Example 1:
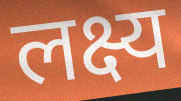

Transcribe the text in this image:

लक्ष्य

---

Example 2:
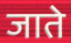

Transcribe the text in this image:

जाते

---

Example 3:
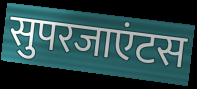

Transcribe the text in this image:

सुपरजाएंटस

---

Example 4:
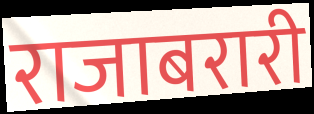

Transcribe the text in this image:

राजाबरारी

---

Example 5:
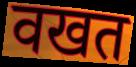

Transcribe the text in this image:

वखत